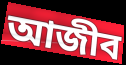
আজীব